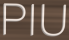
PIU